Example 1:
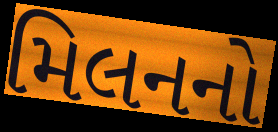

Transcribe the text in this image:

મિલનનો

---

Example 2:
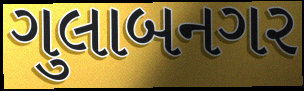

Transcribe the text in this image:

ગુલાબનગર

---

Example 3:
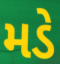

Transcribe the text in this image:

મડે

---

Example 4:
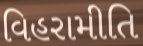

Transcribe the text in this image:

વિહરામીતિ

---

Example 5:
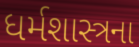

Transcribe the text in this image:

ધર્મશાસ્ત્રના